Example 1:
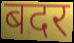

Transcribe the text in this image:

बदर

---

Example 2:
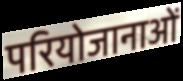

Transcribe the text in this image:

परियोजानाओं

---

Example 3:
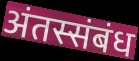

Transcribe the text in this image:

अंतस्संबंध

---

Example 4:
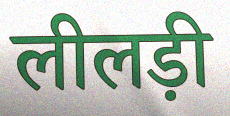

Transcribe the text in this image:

लीलड़ी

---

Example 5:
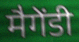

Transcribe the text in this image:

मैगेंडी